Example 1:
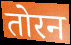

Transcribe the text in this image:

तोरन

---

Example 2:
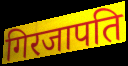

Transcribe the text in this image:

गिरजापति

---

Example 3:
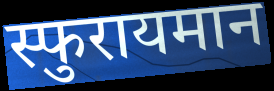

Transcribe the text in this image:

स्फुरायमान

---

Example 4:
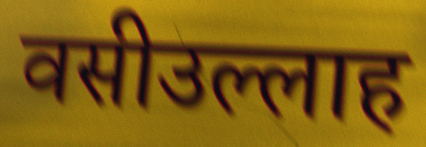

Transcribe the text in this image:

वसीउल्लाह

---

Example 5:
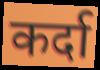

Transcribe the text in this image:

कर्दा